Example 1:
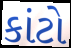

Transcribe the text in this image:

કાંટો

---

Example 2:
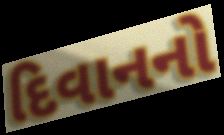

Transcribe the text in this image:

દિવાનનો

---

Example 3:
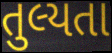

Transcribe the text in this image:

તુલ્યતા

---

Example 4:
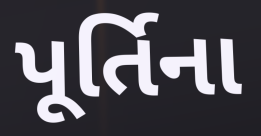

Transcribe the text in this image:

પૂર્તિના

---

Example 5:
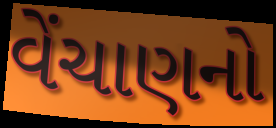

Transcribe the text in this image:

વેંચાણનો